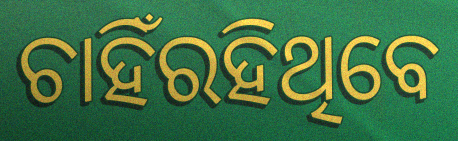
ଚାହିଁରହିଥିବେ